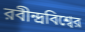
রবীন্দ্রবিশ্বের